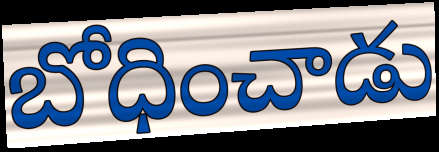
బోధించాడు